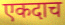
एकदाच